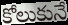
కోలుకునే